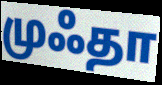
முஃதா